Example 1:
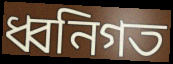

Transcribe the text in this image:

ধ্বনিগত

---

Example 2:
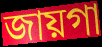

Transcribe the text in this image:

জায়গা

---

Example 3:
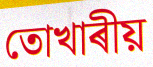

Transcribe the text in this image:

তোখাৰীয়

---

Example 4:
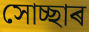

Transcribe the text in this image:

সোচ্ছাৰ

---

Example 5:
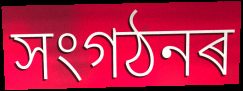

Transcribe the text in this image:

সংগঠনৰ